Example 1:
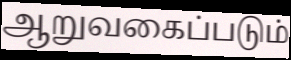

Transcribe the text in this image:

ஆறுவகைப்படும்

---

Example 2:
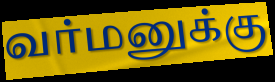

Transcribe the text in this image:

வர்மனுக்கு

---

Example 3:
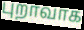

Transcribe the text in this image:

புறாவாக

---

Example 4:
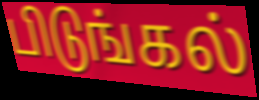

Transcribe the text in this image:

பிடுங்கல்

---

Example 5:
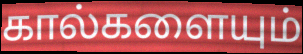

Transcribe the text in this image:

கால்களையும்